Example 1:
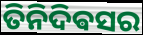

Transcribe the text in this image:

ତିନିଦିଵସର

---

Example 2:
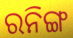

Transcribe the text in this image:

ରନିଙ୍ଗ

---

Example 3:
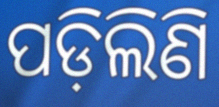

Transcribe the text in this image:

ପଡ଼ିଲିଣି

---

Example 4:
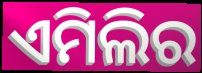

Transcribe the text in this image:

ଏମିଲିର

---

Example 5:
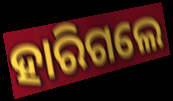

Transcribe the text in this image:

ହାରିଗଲେ